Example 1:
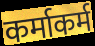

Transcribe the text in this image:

कर्माकर्म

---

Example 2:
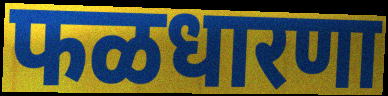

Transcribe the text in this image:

फळधारणा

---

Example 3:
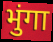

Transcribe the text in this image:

भुंगा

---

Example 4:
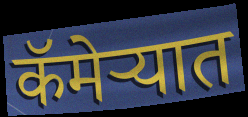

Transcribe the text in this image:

कॅमेऱ्यात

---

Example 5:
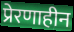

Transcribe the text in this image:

प्रेरणाहीन